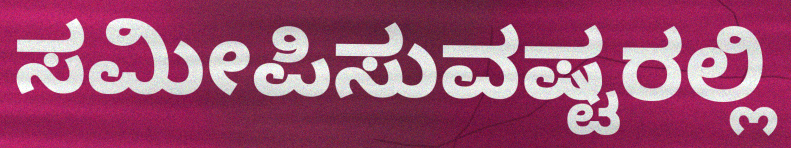
ಸಮೀಪಿಸುವಷ್ಟರಲ್ಲಿ